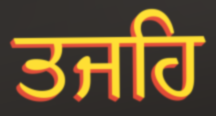
ਤਜਹਿ